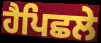
ਹੈਪਿਛਲੇ